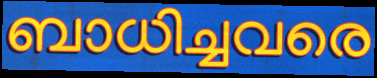
ബാധിച്ചവരെ